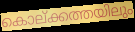
കൊല്ക്കത്തയിലും